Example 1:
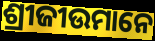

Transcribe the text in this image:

ଶ୍ରୀଜୀଉମାନେ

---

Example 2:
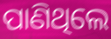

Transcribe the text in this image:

ପାଣିଥିଲେ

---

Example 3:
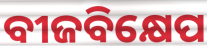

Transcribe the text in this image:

ବୀଜବିକ୍ଷେପ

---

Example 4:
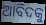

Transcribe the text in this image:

ଆବିଦକୁ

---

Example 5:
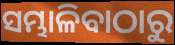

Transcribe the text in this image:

ସମ୍ଭାଳିବାଠାରୁ